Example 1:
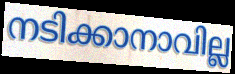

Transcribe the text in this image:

നടിക്കാനാവില്ല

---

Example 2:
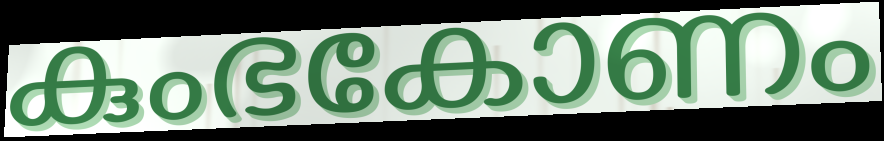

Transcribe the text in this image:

കുംഭകോണം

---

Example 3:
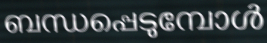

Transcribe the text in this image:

ബന്ധപ്പെടുമ്പോൾ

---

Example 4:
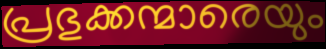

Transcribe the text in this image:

പ്രഭുക്കന്മാരെയും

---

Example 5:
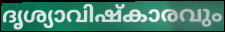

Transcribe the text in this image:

ദൃശ്യാവിഷ്കാരവും